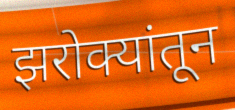
झरोक्यांतून